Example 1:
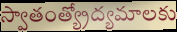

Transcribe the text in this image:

స్వాతంత్య్రోద్యమాలకు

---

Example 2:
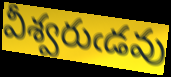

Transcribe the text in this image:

వీశ్వరుఁడవు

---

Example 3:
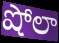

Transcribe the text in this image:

షోలా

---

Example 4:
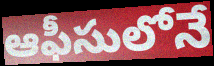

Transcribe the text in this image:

ఆఫీసులోనే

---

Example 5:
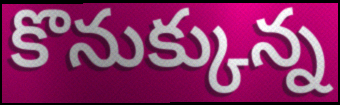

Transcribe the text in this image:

కొనుక్కున్న